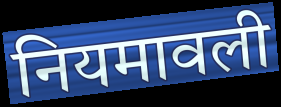
नियमावली